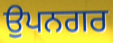
ਉਪਨਗਰ